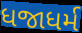
ધજાધર્મ